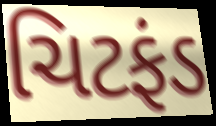
ચિટફંડ